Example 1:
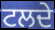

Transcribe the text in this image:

ਟਲਦੇ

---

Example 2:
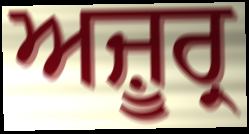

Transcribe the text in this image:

ਅਜ਼ੂਰ੍ਰ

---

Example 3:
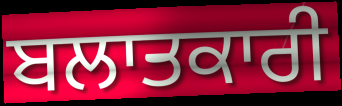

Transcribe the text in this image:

ਬਲਾਤਕਾਰੀ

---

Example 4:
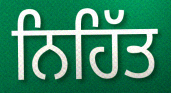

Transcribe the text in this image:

ਨਿਹਿੱਤ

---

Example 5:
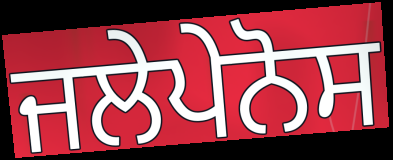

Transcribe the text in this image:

ਜਲੇਪੇਨੋਸ